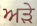
ਅੜੇ